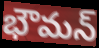
భౌమన్